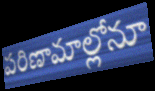
పరిణామాల్లోనూ